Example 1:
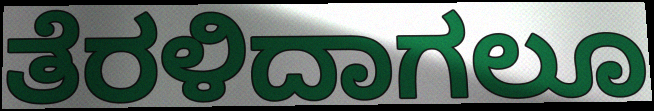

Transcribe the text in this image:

ತೆರಳಿದಾಗಲೂ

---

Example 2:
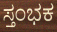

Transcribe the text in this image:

ಸ್ತಂಭಕ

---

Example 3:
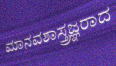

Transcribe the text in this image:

ಮಾನವಶಾಸ್ತ್ರಜ್ಞರಾದ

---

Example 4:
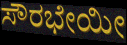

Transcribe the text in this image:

ಸೌರಭೇಯೀ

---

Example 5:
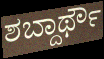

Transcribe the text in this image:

ಶಬ್ದಾರ್ಥೌ